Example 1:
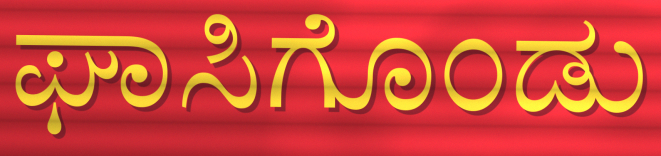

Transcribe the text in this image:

ಘಾಸಿಗೊಂಡು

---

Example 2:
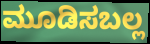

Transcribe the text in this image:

ಮೂಡಿಸಬಲ್ಲ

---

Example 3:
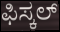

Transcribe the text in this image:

ಫಿಸ್ಕಲ್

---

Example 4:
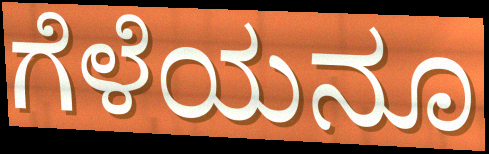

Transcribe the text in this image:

ಗೆಳೆಯನೂ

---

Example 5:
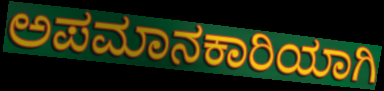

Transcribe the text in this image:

ಅಪಮಾನಕಾರಿಯಾಗಿ